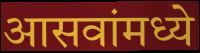
आसवांमध्ये